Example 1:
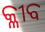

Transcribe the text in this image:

କ୍ଳୀବ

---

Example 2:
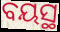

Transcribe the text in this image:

ବୟସ୍ଥ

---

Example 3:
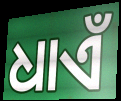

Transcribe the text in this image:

ଧାଏଁ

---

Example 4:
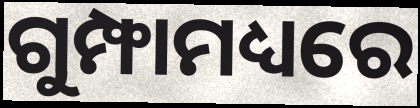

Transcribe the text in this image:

ଗୁମ୍ଫାମଧ୍ୟରେ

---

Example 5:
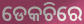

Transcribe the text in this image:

ଡେକଚିରେ